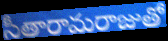
సీతారామరాజుతో